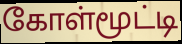
கோள்மூட்டி